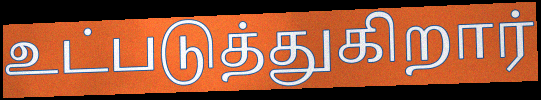
உட்படுத்துகிறார்